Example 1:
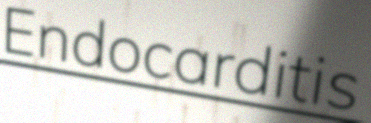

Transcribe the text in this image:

Endocarditis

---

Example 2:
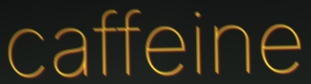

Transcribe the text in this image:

caffeine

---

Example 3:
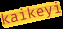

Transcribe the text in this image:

kaikeyi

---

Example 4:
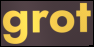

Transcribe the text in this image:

grot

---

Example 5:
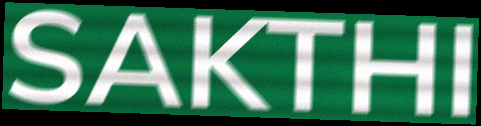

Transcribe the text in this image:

SAKTHI